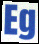
Eg